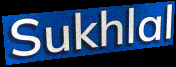
Sukhlal